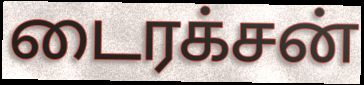
டைரக்சன்